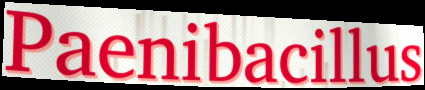
Paenibacillus